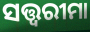
ସତ୍ତ୍ୱରୀମା